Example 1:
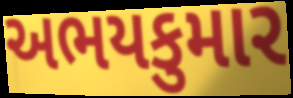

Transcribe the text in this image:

અભયકુમાર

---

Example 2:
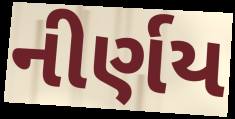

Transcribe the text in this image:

નીર્ણય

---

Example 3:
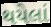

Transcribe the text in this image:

થયેલાં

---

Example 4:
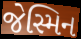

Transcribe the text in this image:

જેસ્મિન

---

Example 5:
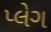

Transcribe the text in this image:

પ્લેગ